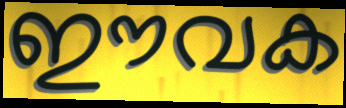
ഈവക